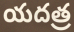
యదత్ర